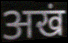
अखं